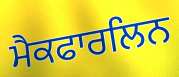
ਮੈਕਫਾਰਲਿਨ